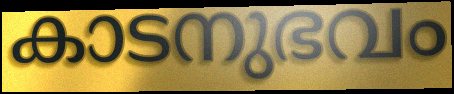
കാടനുഭവം